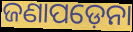
ଜଣାପଡ଼େନା